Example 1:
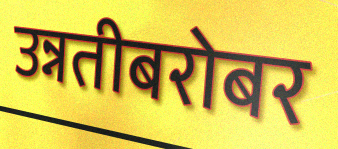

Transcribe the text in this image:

उन्नतीबरोबर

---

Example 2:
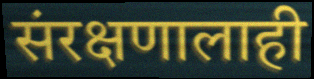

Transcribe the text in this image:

संरक्षणालाही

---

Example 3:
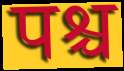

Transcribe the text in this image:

पश्च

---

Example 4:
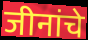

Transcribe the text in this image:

जीनांचे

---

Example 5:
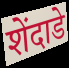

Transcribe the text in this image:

शेंदाडे